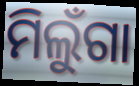
ମିଲୁଁଗା